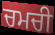
ਚਮਚੀ